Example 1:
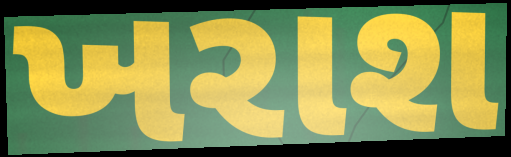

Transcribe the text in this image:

ખરાશ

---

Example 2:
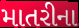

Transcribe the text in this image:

માતરીના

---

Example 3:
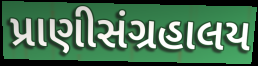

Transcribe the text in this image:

પ્રાણીસંગ્રહાલય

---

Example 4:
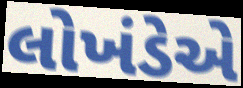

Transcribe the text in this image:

લોખંડેએ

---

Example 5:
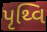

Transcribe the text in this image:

પૃથ્વિ